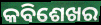
କବିଶେଖର